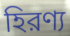
হিরণ্য